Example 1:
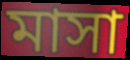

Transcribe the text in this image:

মাসা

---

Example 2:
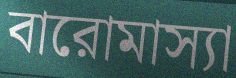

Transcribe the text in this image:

বারোমাস্যা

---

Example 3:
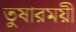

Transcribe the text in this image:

তুষারময়ী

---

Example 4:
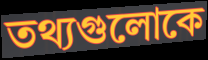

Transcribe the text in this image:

তথ্যগুলোকে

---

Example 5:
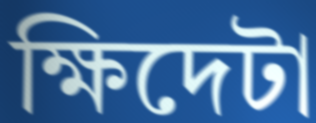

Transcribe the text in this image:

ক্ষিদেটা